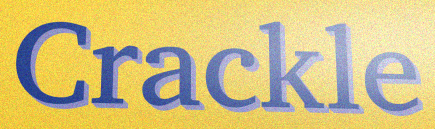
Crackle